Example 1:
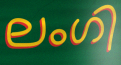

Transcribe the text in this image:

ലംഗി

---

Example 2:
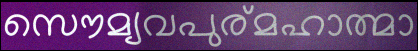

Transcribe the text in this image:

സൌമ്യവപുര്മഹാത്മാ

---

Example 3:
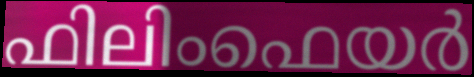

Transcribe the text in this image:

ഫിലിംഫെയർ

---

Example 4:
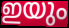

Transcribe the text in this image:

ഇയും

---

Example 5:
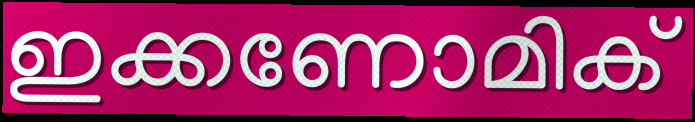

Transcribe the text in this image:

ഇക്കണോമിക്